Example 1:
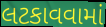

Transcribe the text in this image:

લટકાવવામાં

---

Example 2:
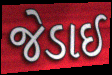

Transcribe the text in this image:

જેડાઈ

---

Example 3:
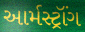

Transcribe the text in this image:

આર્મસ્ટ્રૉંગ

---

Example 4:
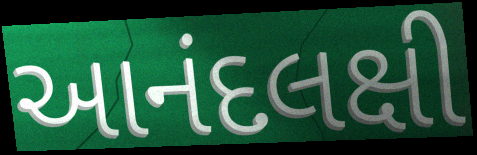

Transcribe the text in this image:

આનંદલક્ષી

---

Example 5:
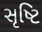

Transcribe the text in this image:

સૃષ્ટિ